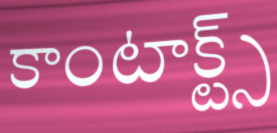
కాంటాక్ట్స్